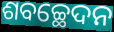
ଶବଚ୍ଛେଦନ